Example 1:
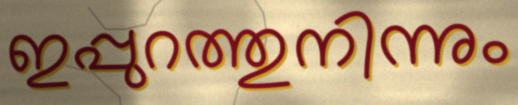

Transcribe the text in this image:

ഇപ്പുറത്തുനിന്നും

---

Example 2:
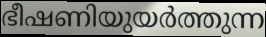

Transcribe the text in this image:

ഭീഷണിയുയർത്തുന്ന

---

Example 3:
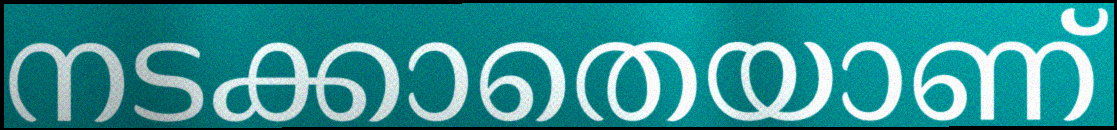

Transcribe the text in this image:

നടക്കാതെയാണ്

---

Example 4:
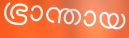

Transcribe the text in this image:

ഭ്രാന്തായ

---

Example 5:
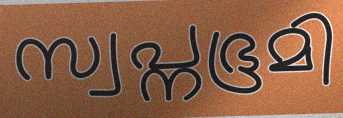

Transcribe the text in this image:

സ്വപ്നഭൂമി